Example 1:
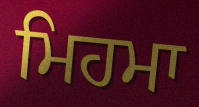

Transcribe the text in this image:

ਮਿਹਮਾ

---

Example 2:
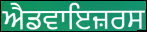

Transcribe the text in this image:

ਐਡਵਾਇਜ਼ਰਸ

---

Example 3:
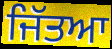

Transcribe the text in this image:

ਜਿੱਤਆ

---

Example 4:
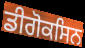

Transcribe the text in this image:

ਡੀਗੋਕਸਿਨ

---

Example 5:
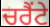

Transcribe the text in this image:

ਚਰੈਂਟੇ